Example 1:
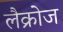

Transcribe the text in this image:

लैक्रोज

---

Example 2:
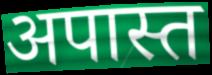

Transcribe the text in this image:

अपास्त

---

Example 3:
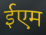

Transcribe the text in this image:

ईएम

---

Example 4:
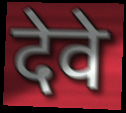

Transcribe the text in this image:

देवे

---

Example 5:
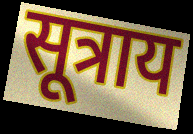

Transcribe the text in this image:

सूत्राय